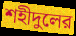
শহীদুলের